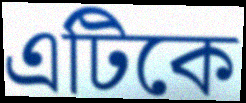
এটিকে